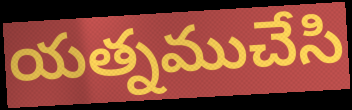
యత్నముచేసి